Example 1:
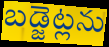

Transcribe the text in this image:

బడ్జెట్లను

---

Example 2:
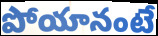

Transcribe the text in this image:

పోయానంటే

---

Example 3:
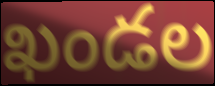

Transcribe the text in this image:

ఖండల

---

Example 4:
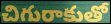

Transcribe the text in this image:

చిగురాకుతో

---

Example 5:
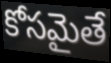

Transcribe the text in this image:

కోసమైతే